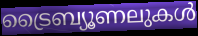
ട്രൈബ്യൂണലുകൾ